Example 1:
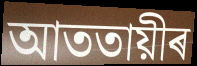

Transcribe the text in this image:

আততায়ীৰ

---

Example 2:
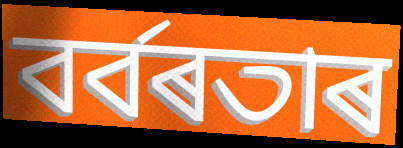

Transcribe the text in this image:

বৰ্বৰতাৰ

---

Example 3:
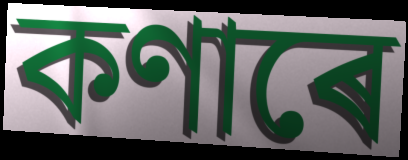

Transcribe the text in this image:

কণাৰে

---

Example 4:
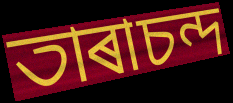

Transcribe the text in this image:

তাৰাচন্দ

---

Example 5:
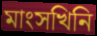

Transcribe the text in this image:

মাংসখিনি